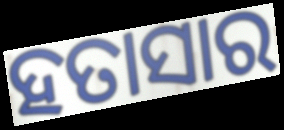
ହତାସାର